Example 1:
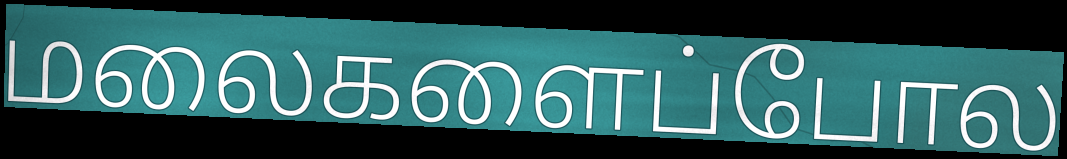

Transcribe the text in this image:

மலைகளைப்போல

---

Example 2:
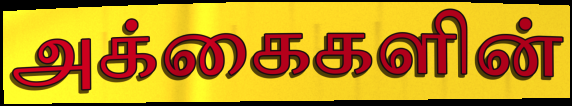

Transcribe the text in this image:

அக்கைகளின்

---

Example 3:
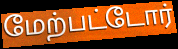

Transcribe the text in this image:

மேற்பட்டோர்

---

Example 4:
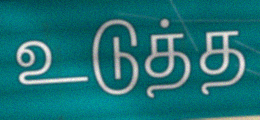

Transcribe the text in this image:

உடுத்த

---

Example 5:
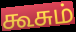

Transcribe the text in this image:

கூசும்